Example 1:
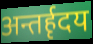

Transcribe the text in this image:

अन्तर्हृदय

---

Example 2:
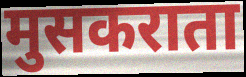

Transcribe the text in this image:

मुसकराता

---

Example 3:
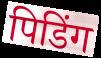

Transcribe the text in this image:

पिडिंग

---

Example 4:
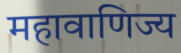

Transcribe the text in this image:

महावाणिज्‍य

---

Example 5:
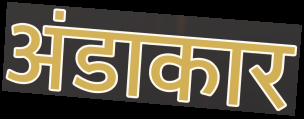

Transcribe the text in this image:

अंडाकार